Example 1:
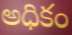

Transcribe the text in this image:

అధికం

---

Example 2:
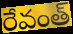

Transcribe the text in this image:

రేవంత్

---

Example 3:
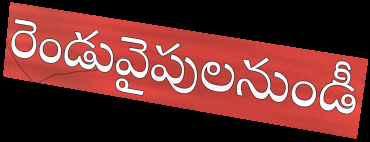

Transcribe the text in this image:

రెండువైపులనుండీ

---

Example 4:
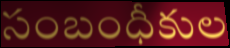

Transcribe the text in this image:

సంబంధీకుల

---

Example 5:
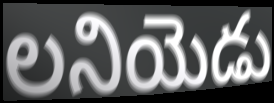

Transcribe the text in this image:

లనియెడు